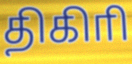
திகிரி